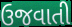
ઉજવાતી